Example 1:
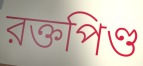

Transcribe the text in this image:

রক্তপিণ্ড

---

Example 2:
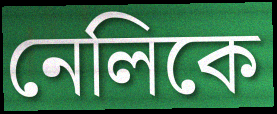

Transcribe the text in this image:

নেলিকে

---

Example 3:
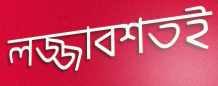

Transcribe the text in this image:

লজ্জাবশতই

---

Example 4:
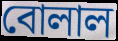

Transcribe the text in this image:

বোলাল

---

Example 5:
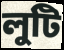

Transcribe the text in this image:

লুটি